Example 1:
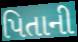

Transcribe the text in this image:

પિતાની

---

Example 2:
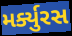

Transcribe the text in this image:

મર્ક્યુરસ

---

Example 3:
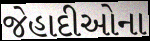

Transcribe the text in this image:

જેહાદીઓના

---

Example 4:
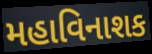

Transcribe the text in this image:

મહાવિનાશક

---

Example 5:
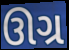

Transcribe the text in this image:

ઊગ્ર